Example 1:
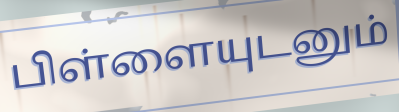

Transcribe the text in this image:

பிள்ளையுடனும்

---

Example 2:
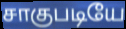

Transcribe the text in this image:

சாகுபடியே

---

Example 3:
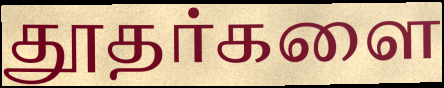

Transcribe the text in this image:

தூதர்களை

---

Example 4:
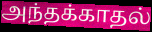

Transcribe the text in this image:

அந்தக்காதல்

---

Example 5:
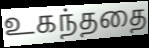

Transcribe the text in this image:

உகந்ததை